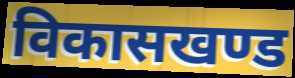
विकासखण्ड